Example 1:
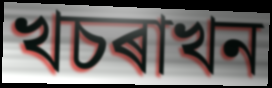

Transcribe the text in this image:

খচৰাখন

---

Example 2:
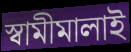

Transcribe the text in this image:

স্বামীমালাই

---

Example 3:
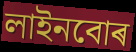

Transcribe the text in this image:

লাইনবোৰ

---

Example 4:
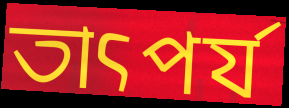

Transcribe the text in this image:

তাৎপৰ্য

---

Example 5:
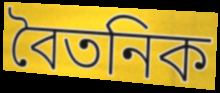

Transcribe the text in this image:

বৈতনিক